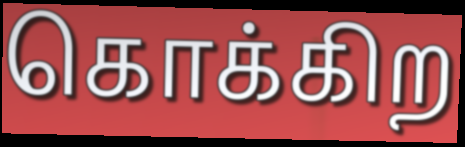
கொக்கிற